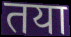
तया